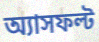
অ্যাসফল্ট